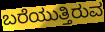
ಬರೆಯುತ್ತಿರುವ